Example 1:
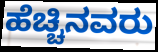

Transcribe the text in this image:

ಹೆಚ್ಚಿನವರು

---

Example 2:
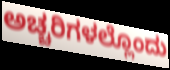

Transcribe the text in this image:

ಅಚ್ಚರಿಗಳಲ್ಲೊಂದು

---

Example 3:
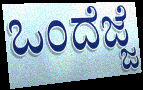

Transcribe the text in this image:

ಒಂದೆಜ್ಜೆ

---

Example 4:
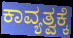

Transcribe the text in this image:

ಕಾವ್ಯತ್ವಕ್ಕೆ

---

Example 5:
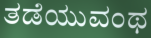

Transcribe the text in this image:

ತಡೆಯುವಂಥ